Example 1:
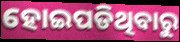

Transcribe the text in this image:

ହୋଇପଡିଥିବାରୁ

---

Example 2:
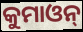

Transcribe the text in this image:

କୁମାଓନ୍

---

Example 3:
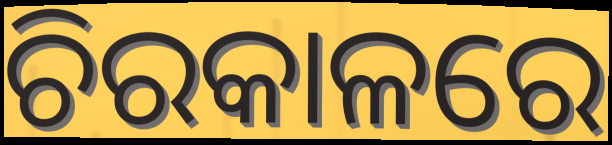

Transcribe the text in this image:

ଚିରକାଳରେ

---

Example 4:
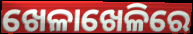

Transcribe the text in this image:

ଖେଳାଖେଳିରେ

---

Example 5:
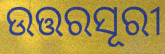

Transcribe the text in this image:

ଉତ୍ତରସୂରୀ